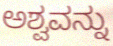
ಅಶ್ವವನ್ನು